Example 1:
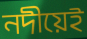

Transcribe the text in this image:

নদীয়েই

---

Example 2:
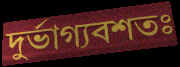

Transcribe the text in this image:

দুৰ্ভাগ্যবশতঃ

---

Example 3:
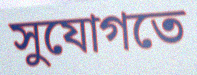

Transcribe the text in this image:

সুযোগতে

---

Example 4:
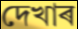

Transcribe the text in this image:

দেখাৰ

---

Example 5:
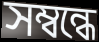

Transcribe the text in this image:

সম্বন্ধে